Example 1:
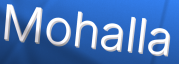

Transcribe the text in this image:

Mohalla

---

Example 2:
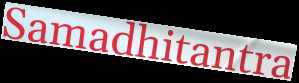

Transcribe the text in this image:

Samadhitantra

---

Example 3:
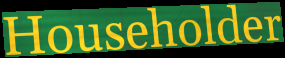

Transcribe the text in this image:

Householder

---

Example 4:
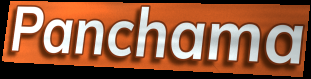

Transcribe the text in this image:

Panchama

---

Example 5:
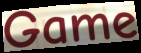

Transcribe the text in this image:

Game